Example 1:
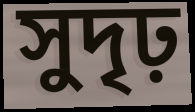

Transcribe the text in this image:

সুদৃঢ়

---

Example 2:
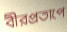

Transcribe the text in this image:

বীরপ্রতাপে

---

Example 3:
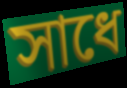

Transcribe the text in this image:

সাধে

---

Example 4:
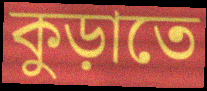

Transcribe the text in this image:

কুড়াতে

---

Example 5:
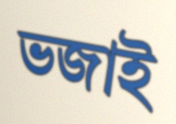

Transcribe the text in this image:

ভজাই